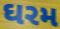
ઘરમ